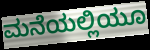
ಮನೆಯಲ್ಲಿಯೂ